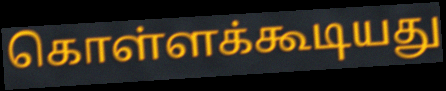
கொள்ளக்கூடியது